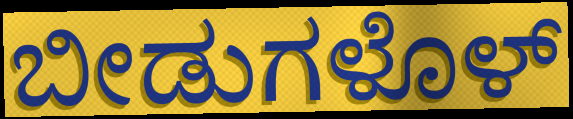
ಬೀಡುಗಳೊಳ್